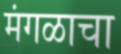
मंगळाचा